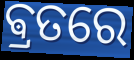
ଵ୍ରତରେ